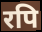
रपि